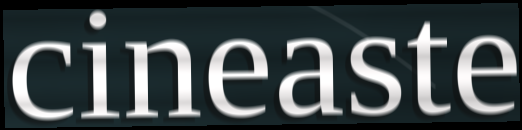
cineaste